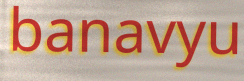
banavyu